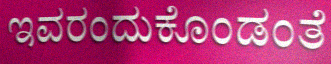
ಇವರಂದುಕೊಂಡಂತೆ